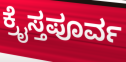
ಕ್ರೈಸ್ತಪೂರ್ವ